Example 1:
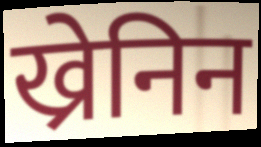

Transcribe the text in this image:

ख्रेनिन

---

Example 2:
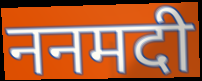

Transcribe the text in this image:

ननमदी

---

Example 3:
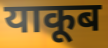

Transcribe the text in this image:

याकूब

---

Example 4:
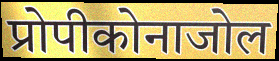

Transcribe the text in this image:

प्रोपीकोनाजोल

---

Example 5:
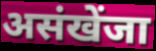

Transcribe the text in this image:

असंखेंजा